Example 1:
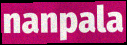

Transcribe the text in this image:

nanpala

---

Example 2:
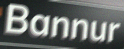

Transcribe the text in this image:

Bannur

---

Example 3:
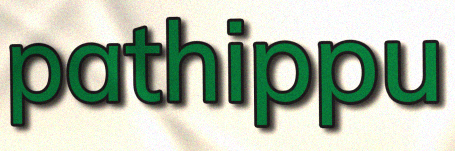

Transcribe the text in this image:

pathippu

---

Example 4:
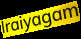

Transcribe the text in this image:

Iraiyagam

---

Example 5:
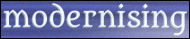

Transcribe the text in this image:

modernising